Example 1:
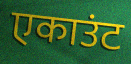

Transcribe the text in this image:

एकाउंट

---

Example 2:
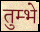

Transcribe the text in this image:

तुम्भे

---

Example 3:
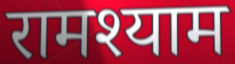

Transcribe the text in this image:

रामश्याम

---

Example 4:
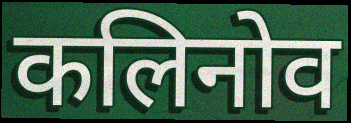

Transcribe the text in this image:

कलिनोव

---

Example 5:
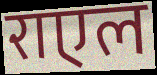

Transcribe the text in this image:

राएल